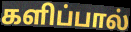
களிப்பால்